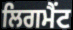
ਲਿਗਮੈਂਟ